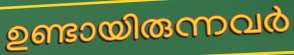
ഉണ്ടായിരുന്നവർ